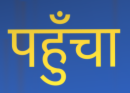
पहुँचा